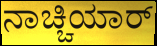
ನಾಚ್ಚಿಯಾರ್